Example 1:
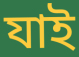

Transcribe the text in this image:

যাই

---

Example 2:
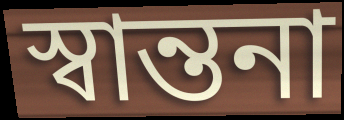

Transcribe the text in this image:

স্বান্তনা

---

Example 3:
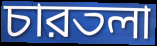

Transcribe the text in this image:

চারতলা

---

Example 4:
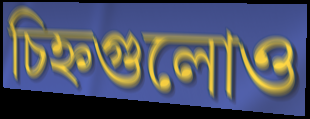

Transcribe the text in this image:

চিহ্নগুলোও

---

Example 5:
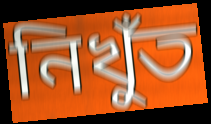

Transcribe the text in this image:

নিখুঁত